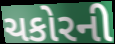
ચકોરની